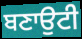
ਬਣਾਉਟੀ